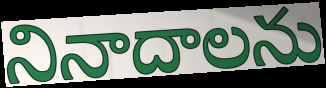
నినాదాలను